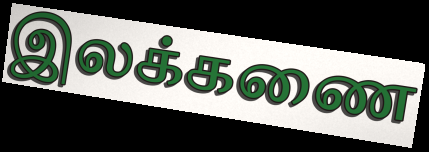
இலக்கணை